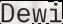
Dewi